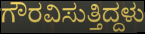
ಗೌರವಿಸುತ್ತಿದ್ದಳು